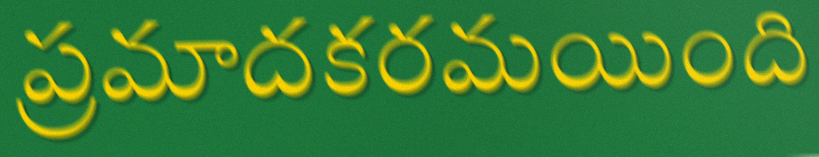
ప్రమాదకరమయింది